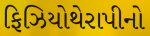
ફિઝિયોથેરાપીનો